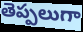
తెప్పలుగా